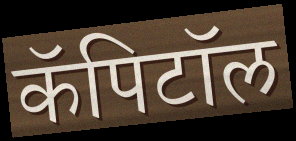
कॅपिटॉल